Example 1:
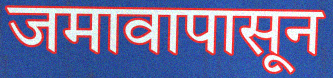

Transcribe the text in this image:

जमावापासून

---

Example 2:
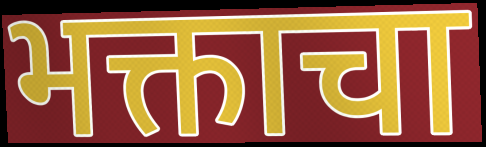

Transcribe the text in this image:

भक्ताचा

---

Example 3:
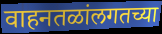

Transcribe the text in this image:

वाहनतळांलगतच्या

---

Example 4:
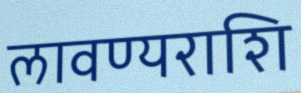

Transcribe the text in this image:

लावण्यराशि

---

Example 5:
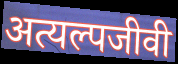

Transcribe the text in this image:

अत्यल्पजीवी